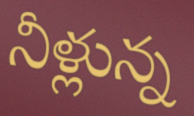
నీళ్లున్న